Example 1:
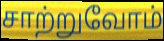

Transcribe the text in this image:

சாற்றுவோம்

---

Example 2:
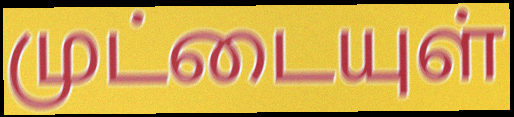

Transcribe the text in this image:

முட்டையுள்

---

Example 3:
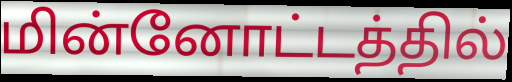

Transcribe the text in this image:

மின்னோட்டத்தில்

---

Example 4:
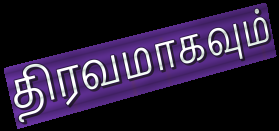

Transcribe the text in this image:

திரவமாகவும்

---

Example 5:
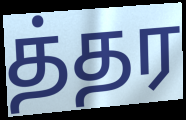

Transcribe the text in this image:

த்தர